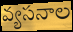
వ్యసనాల